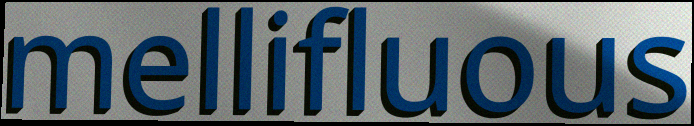
mellifluous